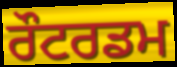
ਰੌਟਰਡਮ